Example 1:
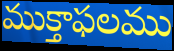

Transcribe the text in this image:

ముక్తాఫలము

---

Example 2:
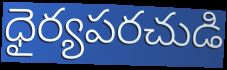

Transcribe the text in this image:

ధైర్యపరచుడి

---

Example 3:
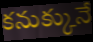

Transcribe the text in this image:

కనుక్కునే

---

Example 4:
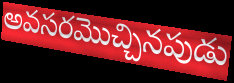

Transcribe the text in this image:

అవసరమొచ్చినపుడు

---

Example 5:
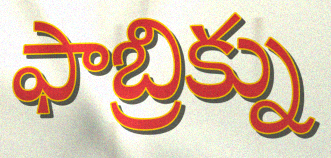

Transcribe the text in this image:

ఫాబ్రిక్ను